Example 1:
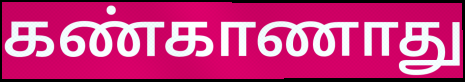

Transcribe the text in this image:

கண்காணாது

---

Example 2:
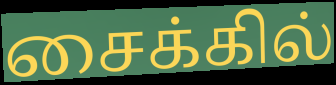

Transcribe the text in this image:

சைக்கில்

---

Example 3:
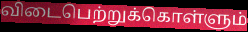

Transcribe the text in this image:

விடைபெற்றுக்கொள்ளும்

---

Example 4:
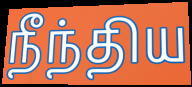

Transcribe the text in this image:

நீந்திய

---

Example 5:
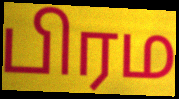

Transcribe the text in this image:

பிரம